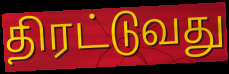
திரட்டுவது